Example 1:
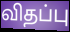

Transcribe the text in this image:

விதப்பு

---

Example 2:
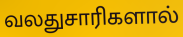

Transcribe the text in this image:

வலதுசாரிகளால்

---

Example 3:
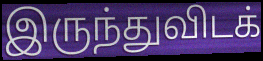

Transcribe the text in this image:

இருந்துவிடக்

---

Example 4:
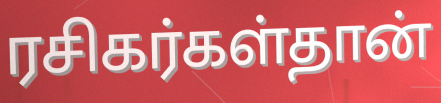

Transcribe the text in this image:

ரசிகர்கள்தான்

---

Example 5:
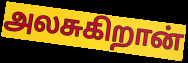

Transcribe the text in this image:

அலசுகிறான்